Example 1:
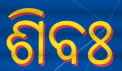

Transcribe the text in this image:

ଶିବଃ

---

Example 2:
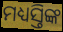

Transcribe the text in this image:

ମଧ୍ୟସ୍ତିଙ୍କ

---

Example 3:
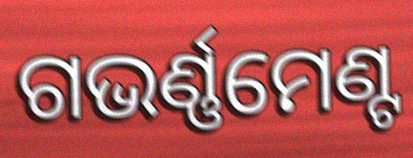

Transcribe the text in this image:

ଗଭର୍ଣ୍ଣମେଣ୍ଟ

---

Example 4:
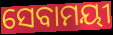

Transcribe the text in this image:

ସେବାମୟୀ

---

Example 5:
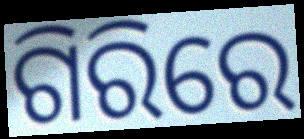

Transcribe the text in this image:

ଗିରିରେ